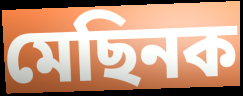
মেছিনক